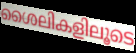
ശൈലികളിലൂടെ